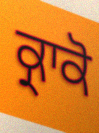
ਕ੍ਰਾਕੋ